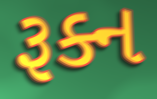
રૂક્ન